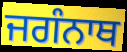
ਜਗੰਨਾਥ